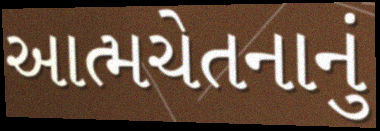
આત્મચેતનાનું